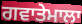
ਗਵਾਤੇਮਾਲਾ